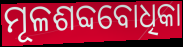
ମୂଳଶବ୍ଦବୋଧିକା